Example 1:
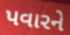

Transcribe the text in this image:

પવારને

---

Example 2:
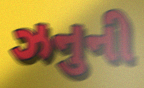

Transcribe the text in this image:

ઝનુની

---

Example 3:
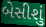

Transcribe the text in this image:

બેસીશું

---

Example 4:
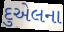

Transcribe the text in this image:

દુએલના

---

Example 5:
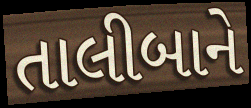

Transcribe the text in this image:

તાલીબાને